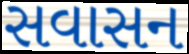
સવાસન